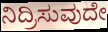
ನಿದ್ರಿಸುವುದೇ